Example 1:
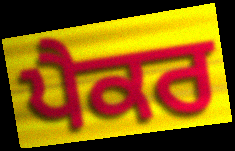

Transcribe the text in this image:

ਪੈਕਰ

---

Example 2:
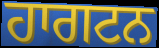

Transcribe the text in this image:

ਹਾਗਟਨ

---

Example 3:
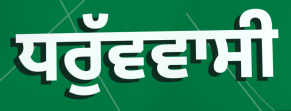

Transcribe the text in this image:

ਧਰੁੱਵਵਾਸੀ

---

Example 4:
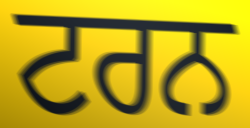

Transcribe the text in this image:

ਟਰਨ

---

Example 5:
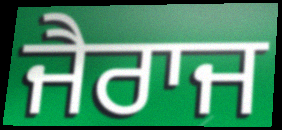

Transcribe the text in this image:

ਜੈਰਾਜ